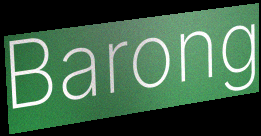
Barong